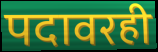
पदावरही